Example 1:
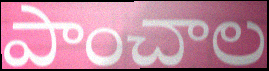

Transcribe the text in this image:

పాంచాల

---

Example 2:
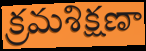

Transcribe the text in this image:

క్రమశిక్షణా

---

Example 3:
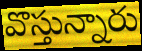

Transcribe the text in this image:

వొస్తున్నారు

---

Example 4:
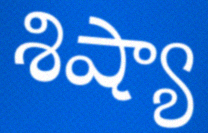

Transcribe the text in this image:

శిష్యా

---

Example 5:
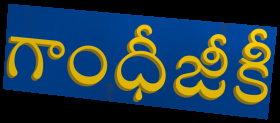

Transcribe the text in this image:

గాంధీజీకీ